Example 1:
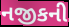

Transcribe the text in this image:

નજીકની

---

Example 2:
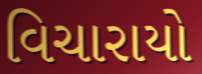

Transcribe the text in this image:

વિચારાયો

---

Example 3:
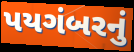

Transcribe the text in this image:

પયગંબરનું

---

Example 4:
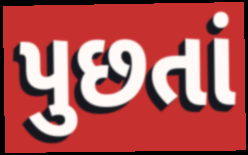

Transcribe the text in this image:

પુછતાં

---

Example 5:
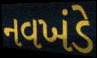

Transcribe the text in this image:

નવખંડે